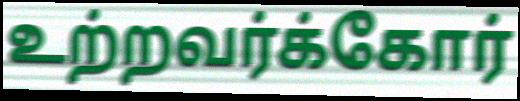
உற்றவர்க்கோர்